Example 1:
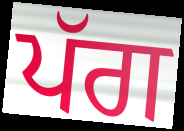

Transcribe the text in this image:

ਪੱਗ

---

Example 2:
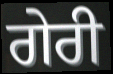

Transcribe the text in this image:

ਗੇਰੀ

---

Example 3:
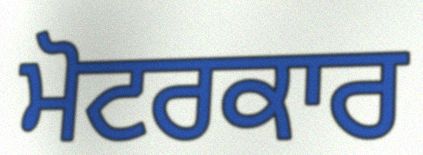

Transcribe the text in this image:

ਮੋਟਰਕਾਰ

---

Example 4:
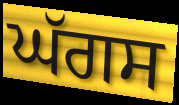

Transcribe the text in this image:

ਘੱਗਸ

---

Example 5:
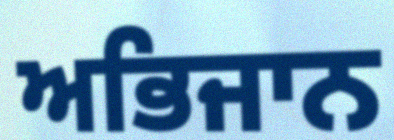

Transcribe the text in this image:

ਅਭਿਜਾਨ